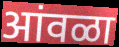
आंवळा